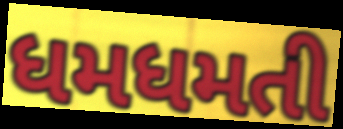
ધમધમતી